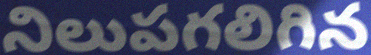
నిలుపగలిగిన